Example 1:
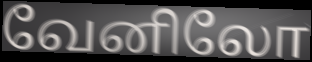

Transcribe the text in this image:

வேனிலோ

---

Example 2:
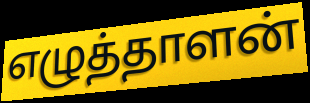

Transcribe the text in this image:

எழுத்தாளன்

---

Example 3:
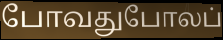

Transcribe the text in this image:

போவதுபோலப்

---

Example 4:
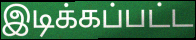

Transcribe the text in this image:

இடிக்கப்பட்ட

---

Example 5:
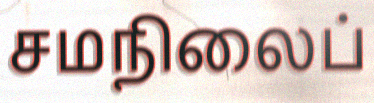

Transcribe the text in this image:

சமநிலைப்